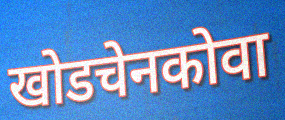
खोडचेनकोवा